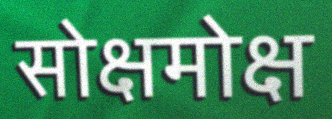
सोक्षमोक्ष